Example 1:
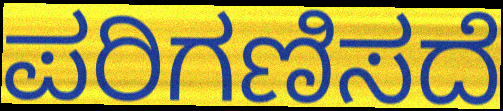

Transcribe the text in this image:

ಪರಿಗಣಿಸದೆ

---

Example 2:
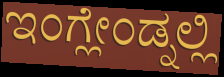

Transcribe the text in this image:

ಇಂಗ್ಲೇಂಡ್ನಲ್ಲಿ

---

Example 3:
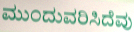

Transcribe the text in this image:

ಮುಂದುವರಿಸಿದೆವು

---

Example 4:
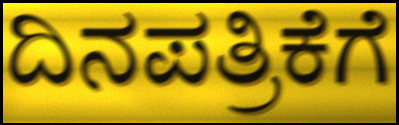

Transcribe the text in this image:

ದಿನಪತ್ರಿಕೆಗೆ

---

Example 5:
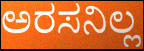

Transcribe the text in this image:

ಅರಸನಿಲ್ಲ